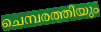
ചെമ്പരത്തിയും